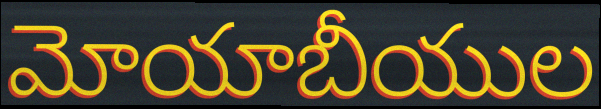
మోయాబీయుల